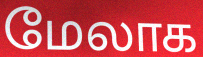
மேலாக